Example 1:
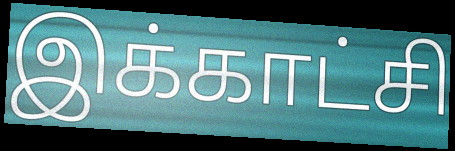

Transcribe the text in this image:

இக்காட்சி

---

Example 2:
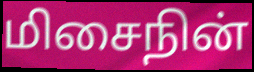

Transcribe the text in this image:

மிசைநின்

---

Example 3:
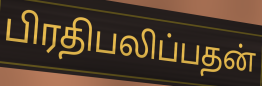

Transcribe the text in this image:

பிரதிபலிப்பதன்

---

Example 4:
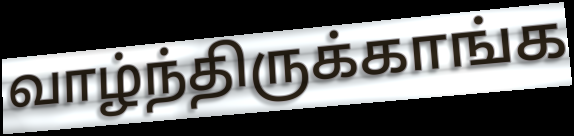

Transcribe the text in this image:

வாழ்ந்திருக்காங்க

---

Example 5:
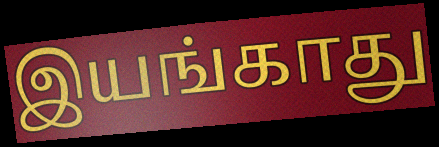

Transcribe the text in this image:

இயங்காது